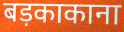
बड़काकाना